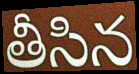
తీసిన